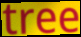
tree